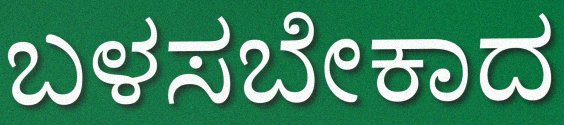
ಬಳಸಬೇಕಾದ